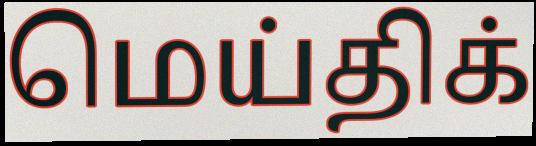
மெய்திக்